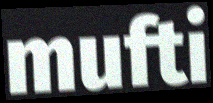
mufti